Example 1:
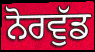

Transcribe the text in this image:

ਨੋਰਵੁੱਡ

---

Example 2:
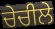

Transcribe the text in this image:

ਚੇਚੀਲੇ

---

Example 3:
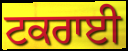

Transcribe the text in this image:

ਟਕਰਾਈ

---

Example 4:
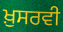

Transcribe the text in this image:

ਖ਼ੁਸਰਵੀ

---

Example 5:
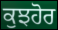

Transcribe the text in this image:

ਕੁਝਹੋਰ